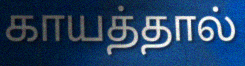
காயத்தால்